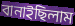
বানাইছিলাম